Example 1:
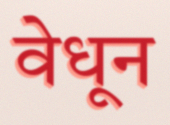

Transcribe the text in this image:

वेधून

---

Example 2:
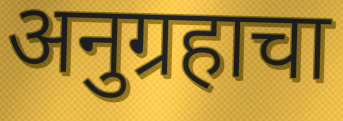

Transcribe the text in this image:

अनुग्रहाचा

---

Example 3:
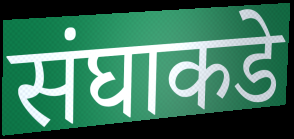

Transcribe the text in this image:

संघाकडे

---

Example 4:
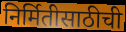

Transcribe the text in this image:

निर्मितीसाठीची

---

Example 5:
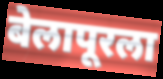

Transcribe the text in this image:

बेलापूरला